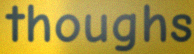
thoughs